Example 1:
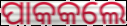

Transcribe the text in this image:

ପାକକଲେ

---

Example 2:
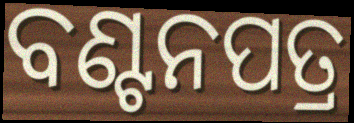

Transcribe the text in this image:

ବଣ୍ଟନପତ୍ର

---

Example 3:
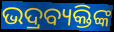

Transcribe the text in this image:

ଭଦ୍ରବ୍ୟକ୍ତିଙ୍କ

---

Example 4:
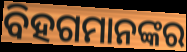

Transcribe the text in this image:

ବିହଗମାନଙ୍କର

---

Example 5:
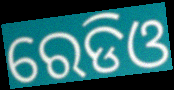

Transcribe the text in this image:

ରେଡିଓ